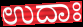
ಉದಾಃ